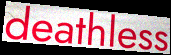
deathless